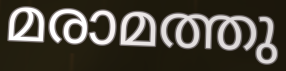
മരാമത്തു